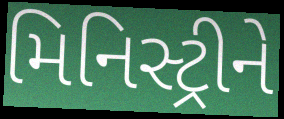
મિનિસ્ટ્રીને